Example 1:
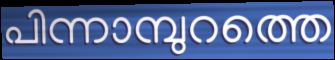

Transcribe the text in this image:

പിന്നാമ്പുറത്തെ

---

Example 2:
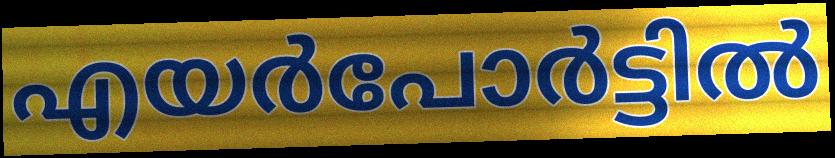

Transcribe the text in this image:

എയർപോർട്ടിൽ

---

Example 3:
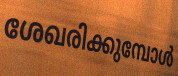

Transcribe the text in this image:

ശേഖരിക്കുമ്പോൾ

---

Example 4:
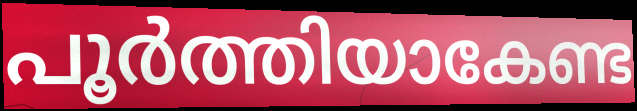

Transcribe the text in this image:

പൂർത്തിയാകേണ്ട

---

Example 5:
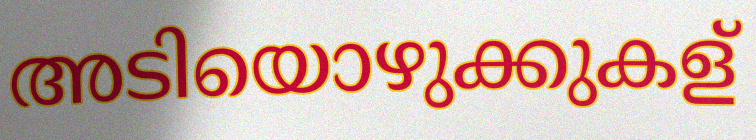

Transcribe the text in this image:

അടിയൊഴുക്കുകള്